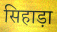
सिहाड़ा